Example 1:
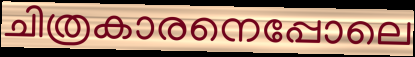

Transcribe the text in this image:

ചിത്രകാരനെപ്പോലെ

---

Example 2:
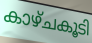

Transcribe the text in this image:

കാഴ്ചകൂടി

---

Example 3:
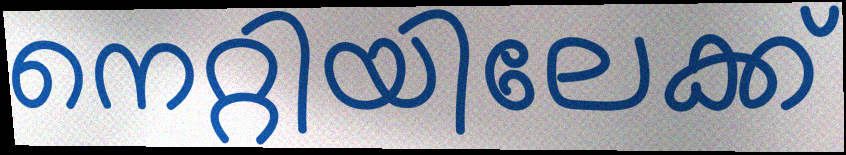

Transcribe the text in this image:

നെറ്റിയിലേക്ക്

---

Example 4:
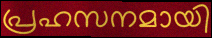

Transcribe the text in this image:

പ്രഹസനമായി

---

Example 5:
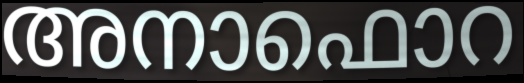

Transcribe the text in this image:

അനാഫൊറ